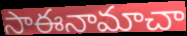
సాఈనామాచా